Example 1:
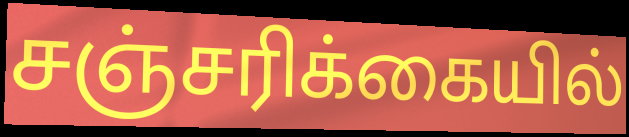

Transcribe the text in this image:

சஞ்சரிக்கையில்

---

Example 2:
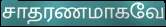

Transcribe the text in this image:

சாதரணமாகவே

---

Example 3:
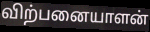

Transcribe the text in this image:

விற்பனையாளன்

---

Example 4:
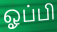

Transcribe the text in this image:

ஓப்பி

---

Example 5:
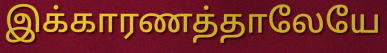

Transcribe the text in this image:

இக்காரணத்தாலேயே